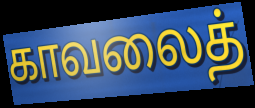
காவலைத்